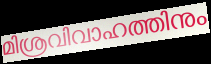
മിശ്രവിവാഹത്തിനും